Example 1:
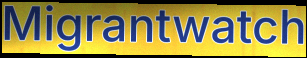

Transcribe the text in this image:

Migrantwatch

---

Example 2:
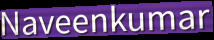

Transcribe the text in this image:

Naveenkumar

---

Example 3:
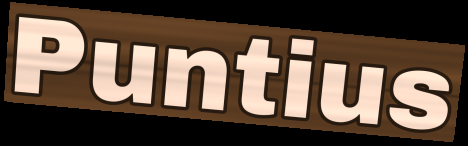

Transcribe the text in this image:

Puntius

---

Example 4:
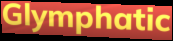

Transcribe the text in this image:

Glymphatic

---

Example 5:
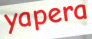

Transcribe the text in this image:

yapera